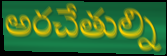
అరచేతుల్ని